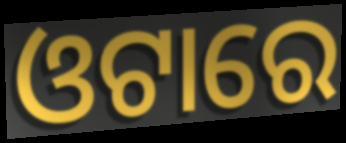
ଓଟାରେ